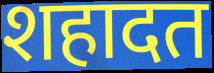
शहादत